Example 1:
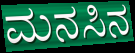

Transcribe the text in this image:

ಮನಸಿನ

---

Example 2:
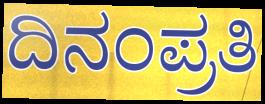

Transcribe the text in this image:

ದಿನಂಪ್ರತಿ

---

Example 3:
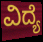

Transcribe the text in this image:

ವಿದ್ಯೆ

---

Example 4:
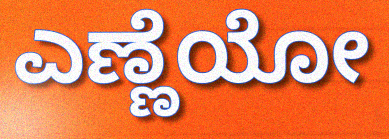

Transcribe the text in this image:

ಎಣ್ಣೆಯೋ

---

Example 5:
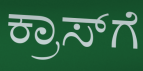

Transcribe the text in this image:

ಕ್ರಾಸ್‌ಗೆ